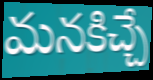
మనకిచ్చే